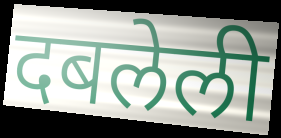
दबलेली